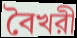
বৈখরী